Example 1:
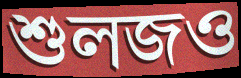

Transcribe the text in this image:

শুলজও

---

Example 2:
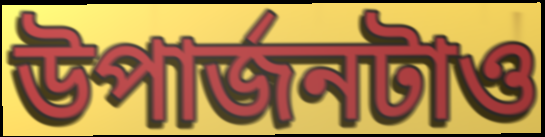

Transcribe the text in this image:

উপার্জনটাও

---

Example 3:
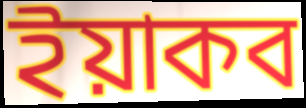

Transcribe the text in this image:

ইয়াকব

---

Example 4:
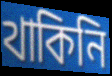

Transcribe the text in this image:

থাকিনি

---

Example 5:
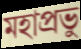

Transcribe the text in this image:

মহাপ্রভু